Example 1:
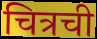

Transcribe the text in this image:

चित्रची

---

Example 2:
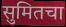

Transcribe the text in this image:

सुमितचा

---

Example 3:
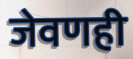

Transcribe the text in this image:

जेवणही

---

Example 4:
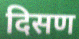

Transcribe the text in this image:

दिसण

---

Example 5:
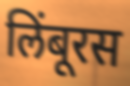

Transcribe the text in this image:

लिंबूरस